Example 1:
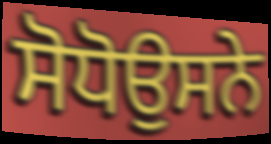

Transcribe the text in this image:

ਸੋਧੋਉਸਨੇ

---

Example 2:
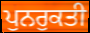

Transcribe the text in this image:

ਪੁਨਰੁਕਤੀ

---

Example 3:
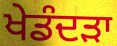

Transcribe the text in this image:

ਖੇਡੰਦੜਾ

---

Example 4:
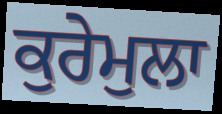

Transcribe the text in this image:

ਕੁਰੇਮੁਲਾ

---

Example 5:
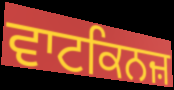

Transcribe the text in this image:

ਵਾਟਕਿਨਜ਼